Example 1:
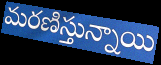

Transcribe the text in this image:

మరణిస్తున్నాయి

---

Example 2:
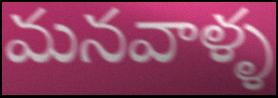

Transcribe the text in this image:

మనవాళ్ళ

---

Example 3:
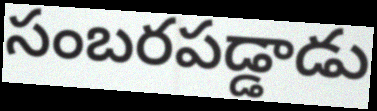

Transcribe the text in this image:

సంబరపడ్డాడు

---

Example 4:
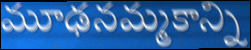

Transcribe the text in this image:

మూఢనమ్మకాన్ని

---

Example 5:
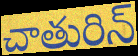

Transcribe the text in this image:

చాతురిన్